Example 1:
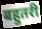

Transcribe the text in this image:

बहुतरी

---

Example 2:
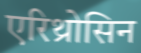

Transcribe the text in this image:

एरिथ्रोसिन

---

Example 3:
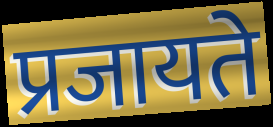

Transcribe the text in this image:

प्रजायते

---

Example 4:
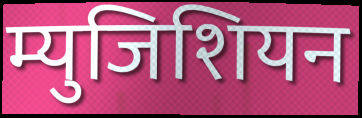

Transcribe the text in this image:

म्‍युजिशियन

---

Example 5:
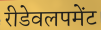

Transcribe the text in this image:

रीडेवलपमेंट